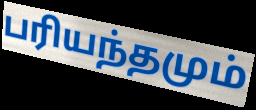
பரியந்தமும்